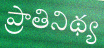
ప్రాతినిథ్య